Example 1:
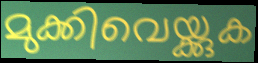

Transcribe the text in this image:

മുക്കിവെയ്ക്കുക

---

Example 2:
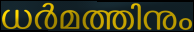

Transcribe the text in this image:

ധർമത്തിനും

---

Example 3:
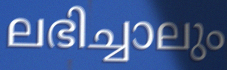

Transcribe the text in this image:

ലഭിച്ചാലും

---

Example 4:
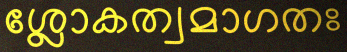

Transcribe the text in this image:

ശ്ലോകത്വമാഗതഃ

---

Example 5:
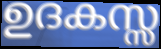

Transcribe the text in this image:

ഉദകസ്സ